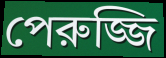
পেরুজ্জি